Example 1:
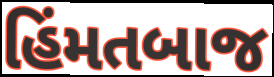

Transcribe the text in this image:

હિંમતબાજ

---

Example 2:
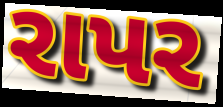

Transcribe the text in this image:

રાપર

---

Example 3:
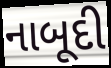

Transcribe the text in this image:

નાબૂદી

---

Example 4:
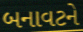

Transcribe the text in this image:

બનાવટને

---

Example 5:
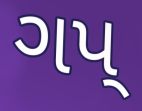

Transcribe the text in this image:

ગપ્